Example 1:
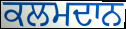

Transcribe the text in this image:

ਕਲਮਦਾਨ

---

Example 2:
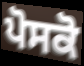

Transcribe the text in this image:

ਪੋਸਕੋ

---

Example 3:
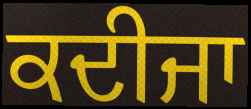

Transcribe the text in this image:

ਕਦੀਜਾ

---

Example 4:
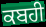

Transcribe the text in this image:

ਕਬਹੀ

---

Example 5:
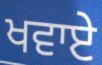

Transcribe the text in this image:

ਖਵਾਏ